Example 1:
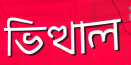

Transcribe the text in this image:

ভিত্থাল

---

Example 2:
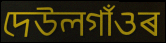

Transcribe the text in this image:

দেউলগাঁওৰ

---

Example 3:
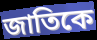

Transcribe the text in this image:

জাতিকে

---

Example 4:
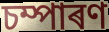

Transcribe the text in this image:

চম্পাৰণ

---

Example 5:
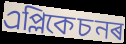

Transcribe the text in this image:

এপ্লিকেচনৰ